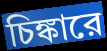
চিঙ্কারে